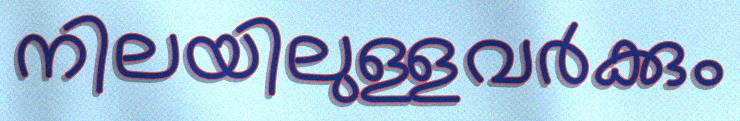
നിലയിലുള്ളവർക്കും